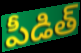
పీడిత్